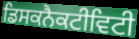
ਡਿਸਕਨੈਕਟੀਵਿਟੀ